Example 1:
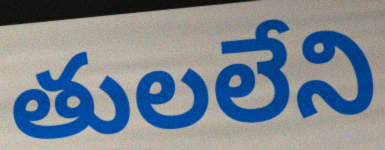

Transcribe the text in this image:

తులలేని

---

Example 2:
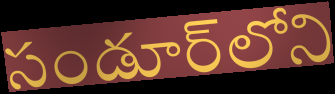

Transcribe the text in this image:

సండూర్‌లోని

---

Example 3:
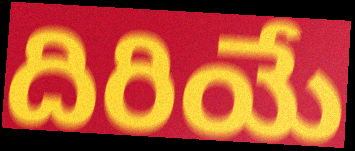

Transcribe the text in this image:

దిరియే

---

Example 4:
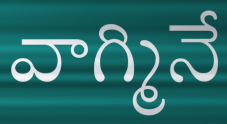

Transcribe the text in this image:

వాగ్మినే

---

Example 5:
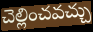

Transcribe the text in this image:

చెల్లించవచ్చు